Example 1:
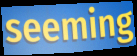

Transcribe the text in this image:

seeming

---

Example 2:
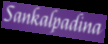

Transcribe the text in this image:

Sankalpadina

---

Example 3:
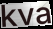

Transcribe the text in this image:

kva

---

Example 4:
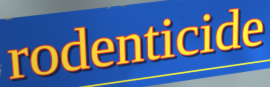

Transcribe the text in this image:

rodenticide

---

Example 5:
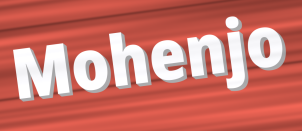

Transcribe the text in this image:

Mohenjo